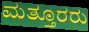
ಮತ್ತೂರರು